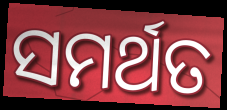
ସମର୍ଥତ